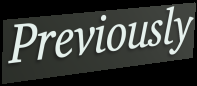
Previously